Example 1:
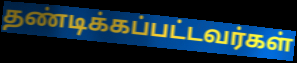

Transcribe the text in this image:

தண்டிக்கப்பட்டவர்கள்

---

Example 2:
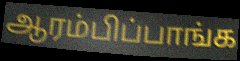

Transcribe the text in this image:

ஆரம்பிப்பாங்க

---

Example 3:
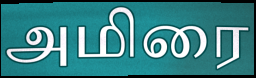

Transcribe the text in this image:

அமிரை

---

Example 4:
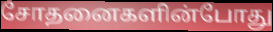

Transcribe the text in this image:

சோதனைகளின்போது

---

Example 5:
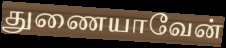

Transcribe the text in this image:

துணையாவேன்